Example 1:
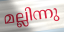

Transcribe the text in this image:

മല്ലിന്നു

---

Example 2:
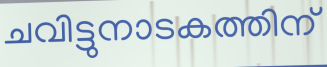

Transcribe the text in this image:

ചവിട്ടുനാടകത്തിന്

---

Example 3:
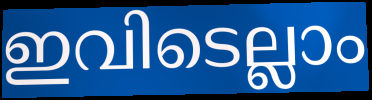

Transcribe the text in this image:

ഇവിടെല്ലാം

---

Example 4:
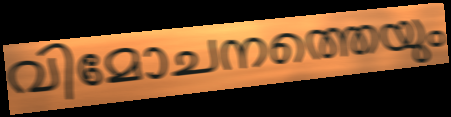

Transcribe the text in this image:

വിമോചനത്തെയും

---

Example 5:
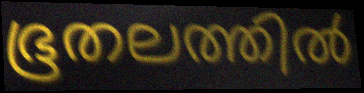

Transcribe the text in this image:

ഭൂതലത്തിൽ